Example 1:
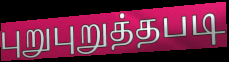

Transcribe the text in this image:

புறுபுறுத்தபடி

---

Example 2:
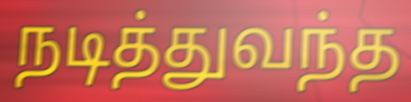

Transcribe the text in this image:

நடித்துவந்த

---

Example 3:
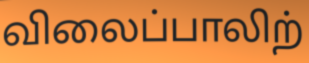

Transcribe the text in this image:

விலைப்பாலிற்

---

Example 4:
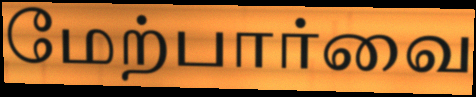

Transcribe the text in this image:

மேற்பார்வை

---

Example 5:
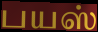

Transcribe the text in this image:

பயஸ்